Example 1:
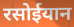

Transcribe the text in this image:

रसोईयान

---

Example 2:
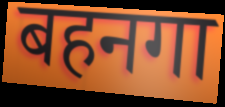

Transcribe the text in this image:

बहनगा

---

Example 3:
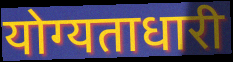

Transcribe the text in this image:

योग्यताधारी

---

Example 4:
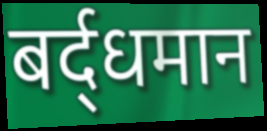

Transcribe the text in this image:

बर्द्धमान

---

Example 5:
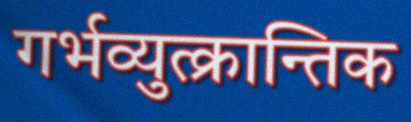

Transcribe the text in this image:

गर्भव्युत्क्रान्तिक